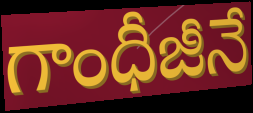
గాంధీజీనే